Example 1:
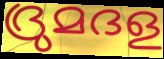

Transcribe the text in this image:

ദ്രുമദള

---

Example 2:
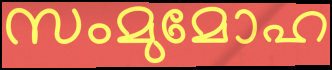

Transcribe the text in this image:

സംമുമോഹ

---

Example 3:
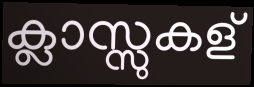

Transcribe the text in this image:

ക്ലാസ്സുകള്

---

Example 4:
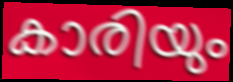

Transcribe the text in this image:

കാരിയും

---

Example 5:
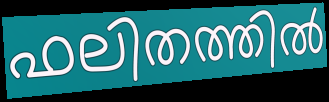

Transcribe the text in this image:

ഫലിതത്തിൽ